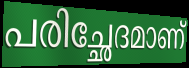
പരിച്ഛേദമാണ്